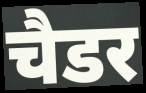
चैडर